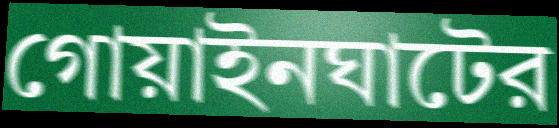
গোয়াইনঘাটের